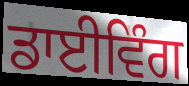
ਡਾਈਵਿੰਗ